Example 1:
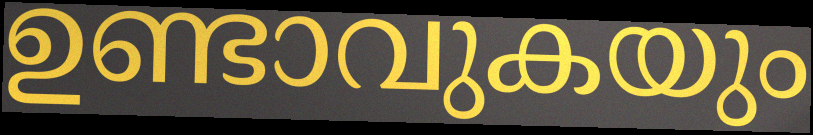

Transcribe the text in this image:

ഉണ്ടാവുകയും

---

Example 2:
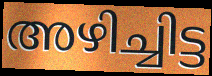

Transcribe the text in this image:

അഴിച്ചിട്ട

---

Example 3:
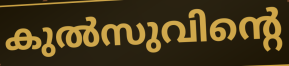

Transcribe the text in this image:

കുൽസുവിന്റെ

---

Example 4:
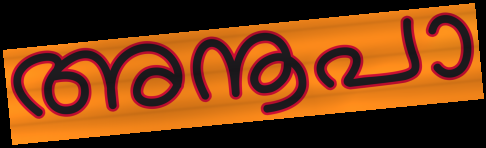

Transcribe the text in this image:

അനൂപാ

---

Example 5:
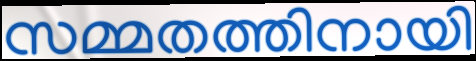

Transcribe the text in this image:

സമ്മതത്തിനായി